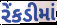
રેંકડીમાં